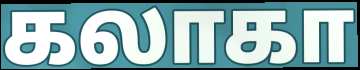
கலாகா